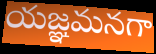
యజ్ఞమనగా